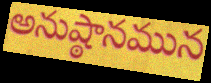
అనుష్ఠానమున